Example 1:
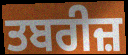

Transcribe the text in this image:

ਤਬਰੀਜ਼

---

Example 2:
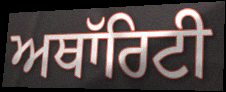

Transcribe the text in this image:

ਅਥਾੱਰਿਟੀ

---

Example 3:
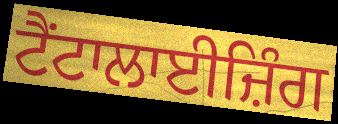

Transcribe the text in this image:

ਟੈਂਟਾਲਾਈਜ਼ਿੰਗ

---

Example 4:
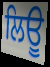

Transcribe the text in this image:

ਲਿਊ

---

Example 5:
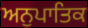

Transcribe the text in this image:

ਅਨੁਪਾਤਿਕ